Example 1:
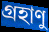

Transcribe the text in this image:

গ্রহাণু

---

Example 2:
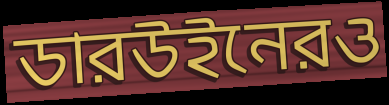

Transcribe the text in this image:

ডারউইনেরও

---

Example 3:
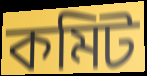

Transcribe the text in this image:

কমিট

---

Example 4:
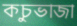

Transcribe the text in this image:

কচুভাজা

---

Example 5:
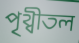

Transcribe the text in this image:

পৃথ্বীতল